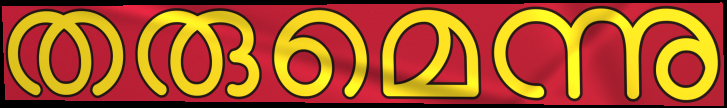
തരുമെന്നു